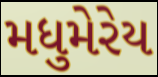
મધુમેરેય